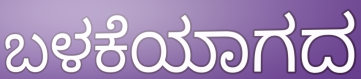
ಬಳಕೆಯಾಗದ